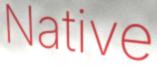
Native